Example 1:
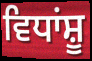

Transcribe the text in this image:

ਵਿਧਾਂਸ਼ੂ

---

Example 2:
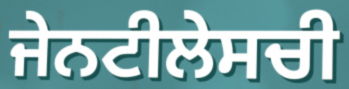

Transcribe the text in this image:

ਜੇਨਟੀਲੇਸਚੀ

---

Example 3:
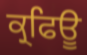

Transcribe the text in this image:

ਕ੍ਰਫਿਊ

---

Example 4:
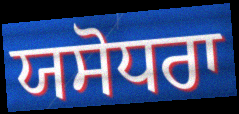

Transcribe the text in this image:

ਯਸੋਧਰਾ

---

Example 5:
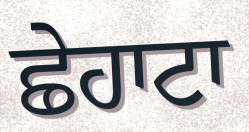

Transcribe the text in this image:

ਛੇਹਾਟਾ